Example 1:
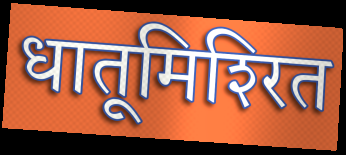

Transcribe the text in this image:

धातूमिश्रित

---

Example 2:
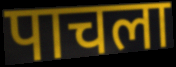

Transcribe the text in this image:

पाचला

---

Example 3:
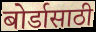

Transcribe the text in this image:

बोर्डासाठी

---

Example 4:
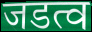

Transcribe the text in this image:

जडत्व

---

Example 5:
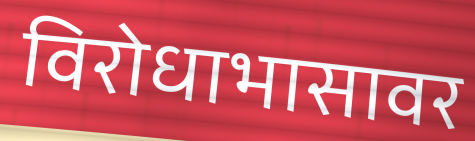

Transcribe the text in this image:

विरोधाभासावर